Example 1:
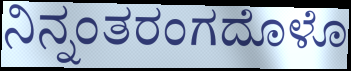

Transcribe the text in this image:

ನಿನ್ನಂತರಂಗದೊಳೊ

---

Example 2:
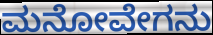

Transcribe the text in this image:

ಮನೋವೇಗನು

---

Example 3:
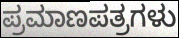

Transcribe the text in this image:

ಪ್ರಮಾಣಪತ್ರಗಳು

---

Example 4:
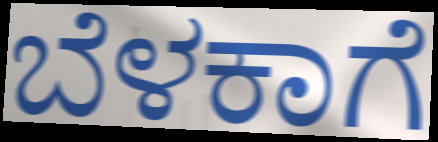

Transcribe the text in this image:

ಬೆಳಕಾಗೆ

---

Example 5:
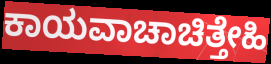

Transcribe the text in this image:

ಕಾಯವಾಚಾಚಿತ್ತೇಹಿ